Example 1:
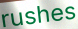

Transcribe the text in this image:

rushes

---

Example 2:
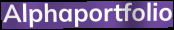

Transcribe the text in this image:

Alphaportfolio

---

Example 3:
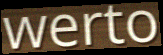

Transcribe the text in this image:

werto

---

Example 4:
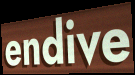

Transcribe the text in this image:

endive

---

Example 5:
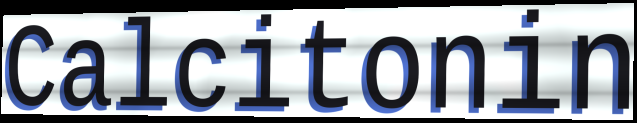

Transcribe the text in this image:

Calcitonin